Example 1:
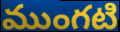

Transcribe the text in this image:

ముంగటి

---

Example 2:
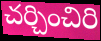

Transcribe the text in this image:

చర్చించిరి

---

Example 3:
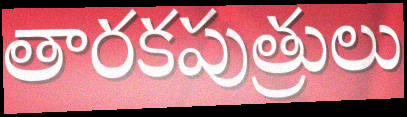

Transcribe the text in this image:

తారకపుత్రులు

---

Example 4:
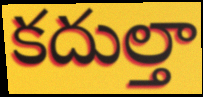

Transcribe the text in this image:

కదుల్తా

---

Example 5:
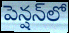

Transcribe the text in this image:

పెన్షన్‌లో